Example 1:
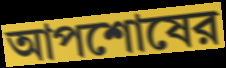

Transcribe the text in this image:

আপশোষের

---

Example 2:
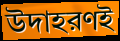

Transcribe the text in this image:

উদাহরণই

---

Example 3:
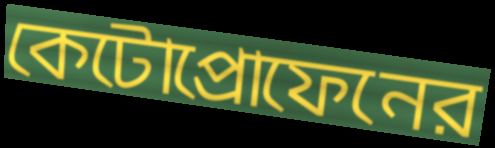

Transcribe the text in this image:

কেটোপ্রোফেনের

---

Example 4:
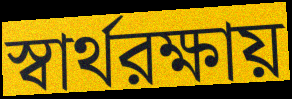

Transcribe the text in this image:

স্বার্থরক্ষায়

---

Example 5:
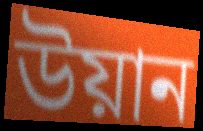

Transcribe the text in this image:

উয়ান